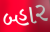
બ્હાર